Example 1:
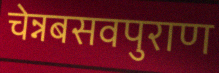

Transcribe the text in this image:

चेन्नबसवपुराण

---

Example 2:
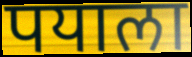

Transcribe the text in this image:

पयाला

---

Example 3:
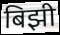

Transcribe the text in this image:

बिझी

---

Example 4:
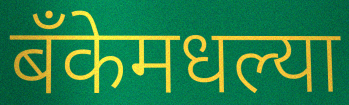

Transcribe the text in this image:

बँकेमधल्या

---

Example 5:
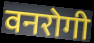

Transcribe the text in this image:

वनरोगी